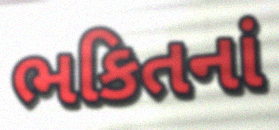
ભકિતનાં